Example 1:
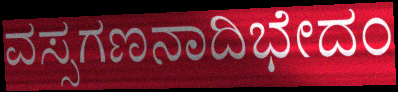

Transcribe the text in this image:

ವಸ್ಸಗಣನಾದಿಭೇದಂ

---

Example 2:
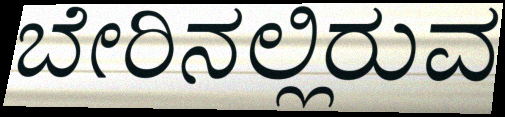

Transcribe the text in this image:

ಬೇರಿನಲ್ಲಿರುವ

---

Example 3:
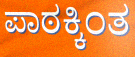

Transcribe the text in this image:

ಪಾಠಕ್ಕಿಂತ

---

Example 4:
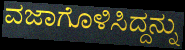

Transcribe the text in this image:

ವಜಾಗೊಳಿಸಿದ್ದನ್ನು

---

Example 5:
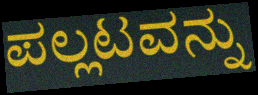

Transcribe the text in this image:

ಪಲ್ಲಟವನ್ನು